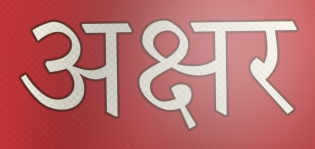
अक्षर